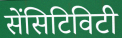
सेंसिटिविटी